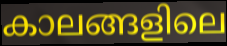
കാലങ്ങളിലെ